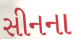
સીનના